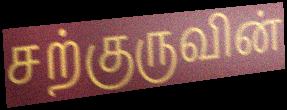
சற்குருவின்